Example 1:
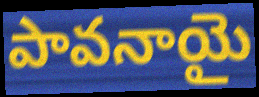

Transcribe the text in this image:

పావనాయై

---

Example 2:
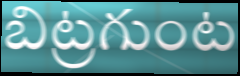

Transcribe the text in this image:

బిట్రగుంట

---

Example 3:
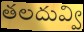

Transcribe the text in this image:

తలదువ్వి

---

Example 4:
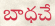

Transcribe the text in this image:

బాధచే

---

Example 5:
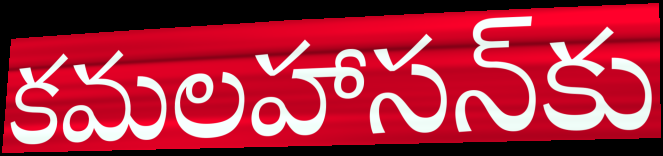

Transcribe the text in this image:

కమలహాసన్‌కు